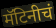
मॅटिनीचं